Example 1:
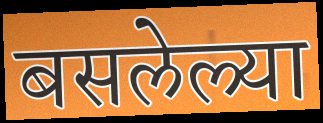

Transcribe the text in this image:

बसलेल्या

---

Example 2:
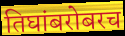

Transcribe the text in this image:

तिघांबरोबरच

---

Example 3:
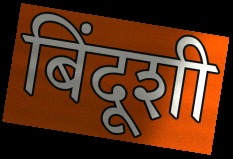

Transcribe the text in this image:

बिंदूशी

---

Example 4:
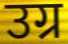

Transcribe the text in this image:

उग्र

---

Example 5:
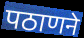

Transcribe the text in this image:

पठाणने